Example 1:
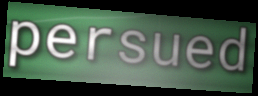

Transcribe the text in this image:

persued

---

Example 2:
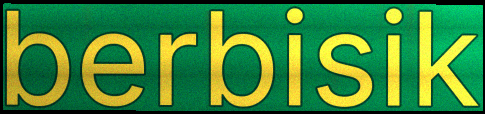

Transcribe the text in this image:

berbisik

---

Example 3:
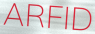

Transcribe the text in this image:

ARFID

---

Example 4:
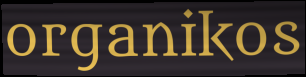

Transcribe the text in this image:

organikos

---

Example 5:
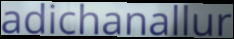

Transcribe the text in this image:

adichanallur